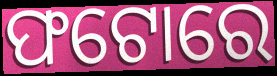
ଫଟୋରେ